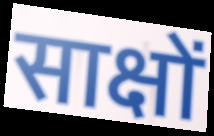
साक्षों